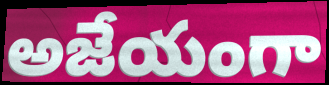
అజేయంగా